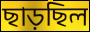
ছাড়ছিল